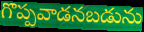
గొప్పవాడనబడును